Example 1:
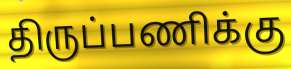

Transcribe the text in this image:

திருப்பணிக்கு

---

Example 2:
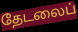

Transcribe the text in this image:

தேடலைப்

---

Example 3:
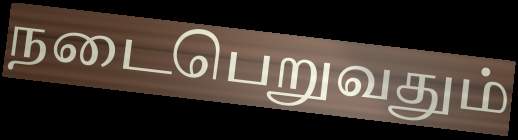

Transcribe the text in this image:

நடைபெறுவதும்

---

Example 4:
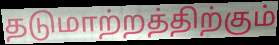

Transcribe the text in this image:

தடுமாற்றத்திற்கும்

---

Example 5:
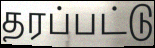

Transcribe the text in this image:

தரப்பட்டு